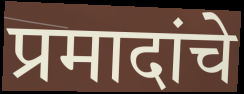
प्रमादांचे